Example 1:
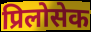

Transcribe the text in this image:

प्रिलोसेक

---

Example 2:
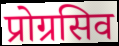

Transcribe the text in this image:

प्रोग्रसिव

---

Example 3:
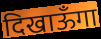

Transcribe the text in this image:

दिखाऊँगा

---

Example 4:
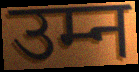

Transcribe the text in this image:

उम्न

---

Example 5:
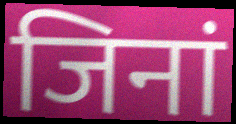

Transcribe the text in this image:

जिनां